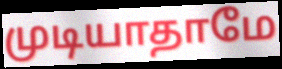
முடியாதாமே